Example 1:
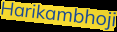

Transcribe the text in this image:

Harikambhoji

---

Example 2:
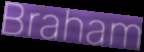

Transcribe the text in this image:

Braham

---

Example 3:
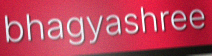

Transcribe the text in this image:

bhagyashree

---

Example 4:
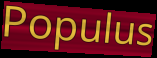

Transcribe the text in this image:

Populus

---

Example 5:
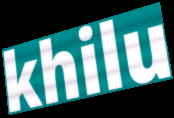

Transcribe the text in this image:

khilu